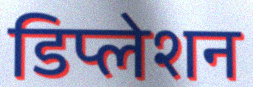
डिप्लेशन